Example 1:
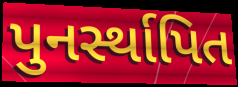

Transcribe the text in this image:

પુનર્સ્થાપિત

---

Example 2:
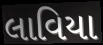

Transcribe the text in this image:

લાવિયા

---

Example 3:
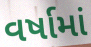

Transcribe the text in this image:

વર્ષામાં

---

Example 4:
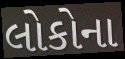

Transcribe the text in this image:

લોકોના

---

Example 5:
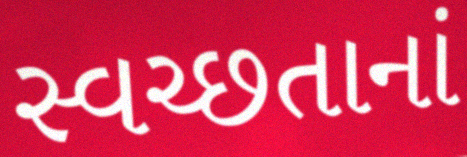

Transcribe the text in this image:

સ્વચ્છતાનાં